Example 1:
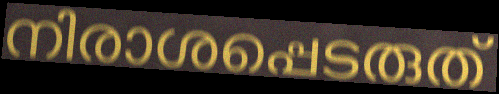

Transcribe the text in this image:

നിരാശപ്പെടരുത്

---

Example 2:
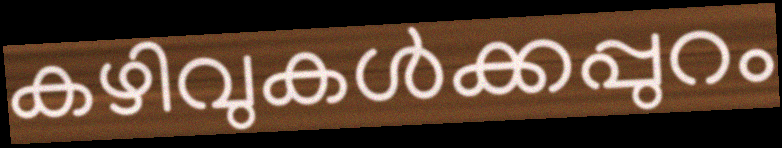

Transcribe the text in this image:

കഴിവുകൾക്കപ്പുറം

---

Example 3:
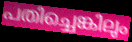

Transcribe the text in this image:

പതിച്ചെങ്കിലും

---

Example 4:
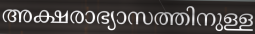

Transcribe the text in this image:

അക്ഷരാഭ്യാസത്തിനുള്ള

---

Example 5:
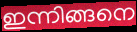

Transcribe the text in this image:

ഇന്നിങ്ങനെ